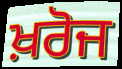
ਖ਼ਰੋਜ